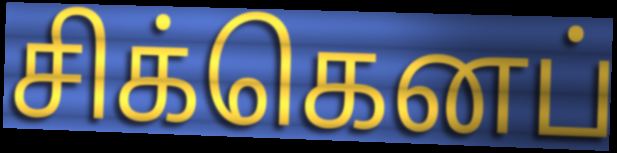
சிக்கெனப்